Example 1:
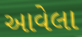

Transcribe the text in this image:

આવેલા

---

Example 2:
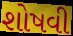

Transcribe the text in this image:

શોષવી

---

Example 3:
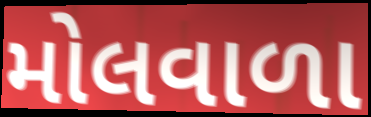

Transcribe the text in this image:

મોલવાળા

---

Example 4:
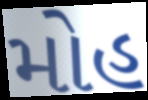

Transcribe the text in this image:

મોહ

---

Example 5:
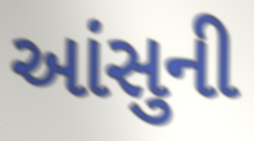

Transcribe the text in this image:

આંસુની